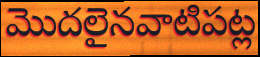
మొదలైనవాటిపట్ల